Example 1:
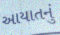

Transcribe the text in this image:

આયાતનું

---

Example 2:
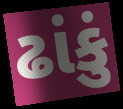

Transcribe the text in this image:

ઢાંકું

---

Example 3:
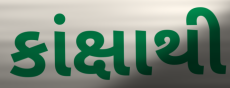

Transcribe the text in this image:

કાંક્ષાથી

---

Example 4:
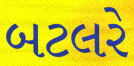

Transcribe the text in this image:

બટલરે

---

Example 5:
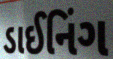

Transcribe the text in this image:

ડાઈનિંગ